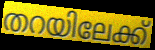
തറയിലേക്ക്